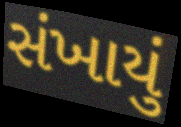
સંખાયું